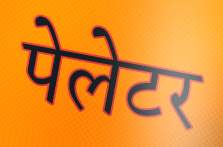
पेलेटर